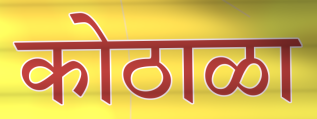
कोठाळा